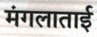
मंगलाताई